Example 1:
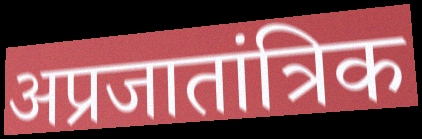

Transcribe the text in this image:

अप्रजातांत्रिक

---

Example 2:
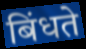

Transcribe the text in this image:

बिंधते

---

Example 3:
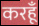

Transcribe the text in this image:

करहूँ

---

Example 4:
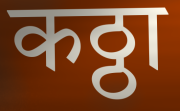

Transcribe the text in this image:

कठ्ठा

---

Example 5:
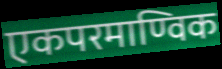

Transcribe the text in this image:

एकपरमाण्विक